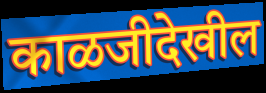
काळजीदेखील